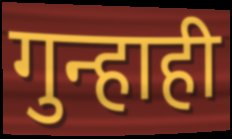
गुन्हाही